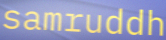
samruddh